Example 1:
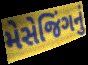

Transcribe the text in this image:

મેસેજિંગનું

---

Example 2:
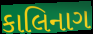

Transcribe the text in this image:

કાલિનાગ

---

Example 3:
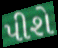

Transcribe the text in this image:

પીશે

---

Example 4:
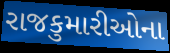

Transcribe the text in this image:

રાજકુમારીઓના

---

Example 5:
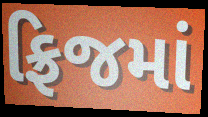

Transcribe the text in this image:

ફ્રિજમાં